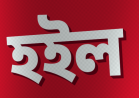
হইল